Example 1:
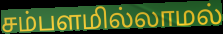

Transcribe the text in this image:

சம்பளமில்லாமல்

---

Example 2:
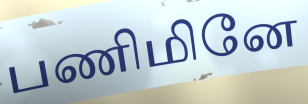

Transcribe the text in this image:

பணிமினே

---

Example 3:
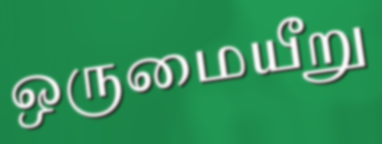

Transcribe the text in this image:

ஒருமையீறு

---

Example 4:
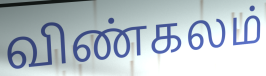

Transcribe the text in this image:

விண்கலம்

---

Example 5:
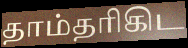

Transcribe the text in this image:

தாம்தரிகிட